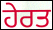
ਹੇਰਤ